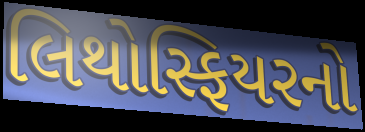
લિથોસ્ફિયરનો